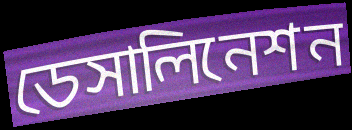
ডেসালিনেশন